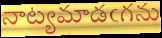
నాట్యమాడఁగను